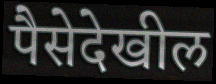
पैसेदेखील